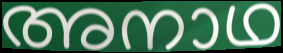
അനാഥ